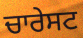
ਚਾਰੇਸਟ